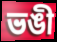
ভঙী